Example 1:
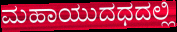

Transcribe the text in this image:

ಮಹಾಯುದಧದಲ್ಲಿ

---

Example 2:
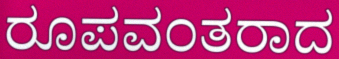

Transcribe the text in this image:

ರೂಪವಂತರಾದ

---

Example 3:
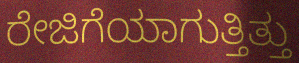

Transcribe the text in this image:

ರೇಜಿಗೆಯಾಗುತ್ತಿತ್ತು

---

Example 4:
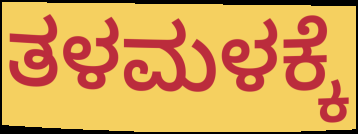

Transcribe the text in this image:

ತಳಮಳಕ್ಕೆ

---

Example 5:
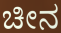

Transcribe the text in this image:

ಚೀನ